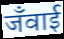
जँवाई